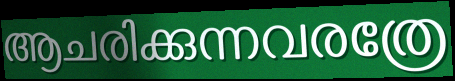
ആചരിക്കുന്നവരത്രേ